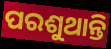
ପରଶୁଥାନ୍ତି